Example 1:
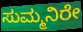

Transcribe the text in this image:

ಸುಮ್ಮನಿರೇ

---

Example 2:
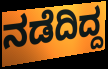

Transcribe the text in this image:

ನಡೆದಿದ್ದ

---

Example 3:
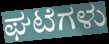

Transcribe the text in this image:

ಘಟೆಗಳು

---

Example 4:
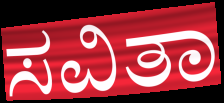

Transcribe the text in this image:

ಸವಿತಾ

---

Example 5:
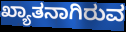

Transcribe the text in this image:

ಖ್ಯಾತನಾಗಿರುವ